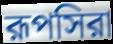
রূপসিরা